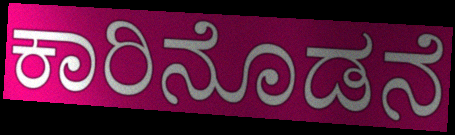
ಕಾರಿನೊಡನೆ